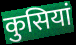
कुसियां